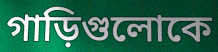
গাড়িগুলোকে